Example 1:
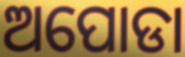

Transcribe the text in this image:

ଅପୋଡା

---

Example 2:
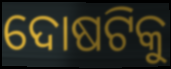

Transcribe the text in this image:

ଦୋଷଟିକୁ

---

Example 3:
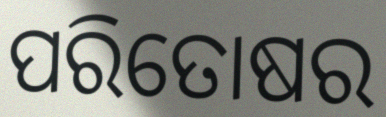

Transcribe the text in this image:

ପରିତୋଷର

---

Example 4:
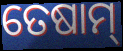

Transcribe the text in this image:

ତେଷାମ୍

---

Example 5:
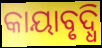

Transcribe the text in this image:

କାୟାବୃଦ୍ଧି